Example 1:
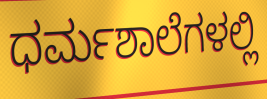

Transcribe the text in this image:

ಧರ್ಮಶಾಲೆಗಳಲ್ಲಿ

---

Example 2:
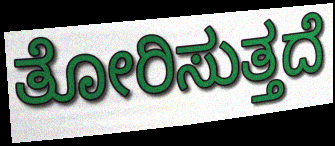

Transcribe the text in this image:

ತೋರಿಸುತ್ತದೆ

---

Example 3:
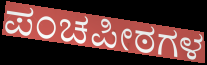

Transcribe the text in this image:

ಪಂಚಪೀಠಗಳ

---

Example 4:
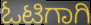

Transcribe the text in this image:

ಓಟಿಗಾಗಿ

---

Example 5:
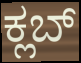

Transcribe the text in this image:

ಕ್ಲಬ್